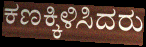
ಕಣಕ್ಕಿಳಿಸಿದರು